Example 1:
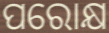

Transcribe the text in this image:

ପରୋକ୍ଷ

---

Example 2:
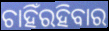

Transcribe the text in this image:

ଚାହିଁରହିବାର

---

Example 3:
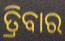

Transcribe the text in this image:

ତ୍ରିବାର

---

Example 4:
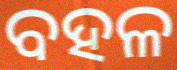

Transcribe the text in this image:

ବହଳ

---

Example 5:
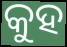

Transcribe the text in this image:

କୁହ